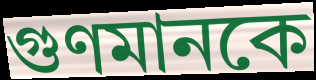
গুণমানকে